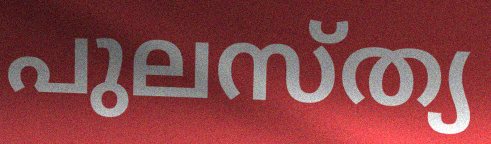
പുലസ്ത്യ